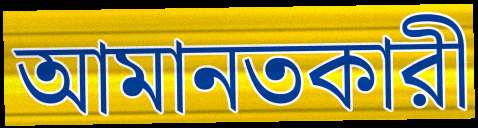
আমানতকারী